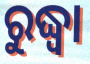
ରୁଦ୍ଧ୍ୱା